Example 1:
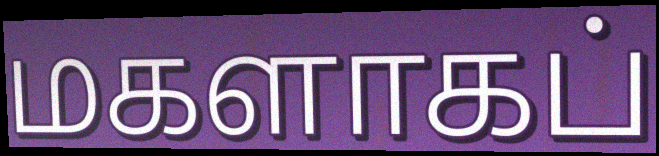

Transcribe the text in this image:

மகளாகப்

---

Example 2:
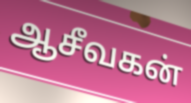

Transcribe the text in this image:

ஆசீவகன்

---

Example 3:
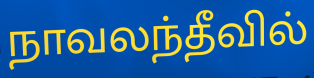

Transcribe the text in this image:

நாவலந்தீவில்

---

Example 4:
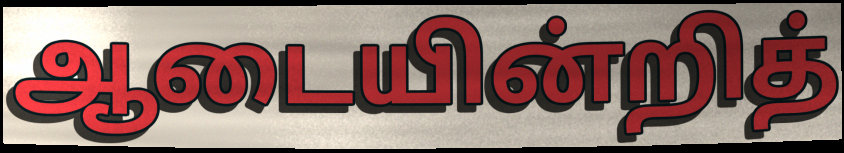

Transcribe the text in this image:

ஆடையின்றித்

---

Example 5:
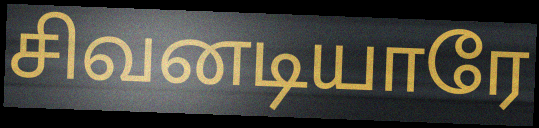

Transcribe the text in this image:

சிவனடியாரே